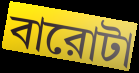
বারোটা